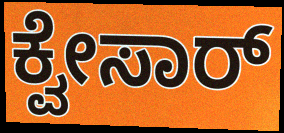
ಕ್ವೇಸಾರ್